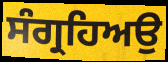
ਸੰਗ੍ਰਹਿਅਉ